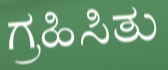
ಗ್ರಹಿಸಿತು